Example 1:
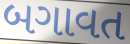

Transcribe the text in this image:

બગાવત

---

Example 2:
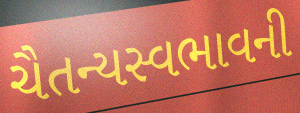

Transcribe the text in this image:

ચૈતન્યસ્વભાવની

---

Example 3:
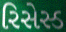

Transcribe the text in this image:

રિસેસ્ડ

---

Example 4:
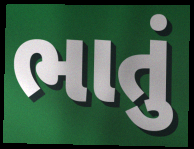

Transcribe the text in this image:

ભાતું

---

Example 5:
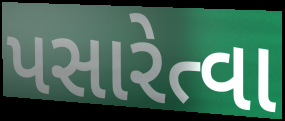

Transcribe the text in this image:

પસારેત્વા